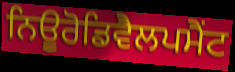
ਨਿਊਰੋਡਿਵੈਲਪਮੈਂਟ